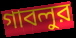
গাবলুর